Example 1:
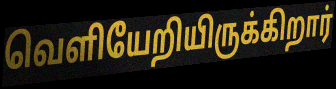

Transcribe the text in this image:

வெளியேறியிருக்கிறார்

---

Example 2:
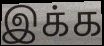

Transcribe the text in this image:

இக்க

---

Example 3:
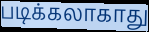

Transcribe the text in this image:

படிக்கலாகாது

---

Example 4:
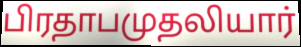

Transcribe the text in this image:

பிரதாபமுதலியார்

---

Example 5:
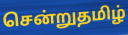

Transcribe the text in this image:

சென்றுதமிழ்